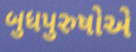
બુધપુરુષોએ